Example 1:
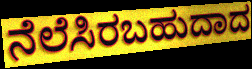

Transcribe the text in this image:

ನೆಲೆಸಿರಬಹುದಾದ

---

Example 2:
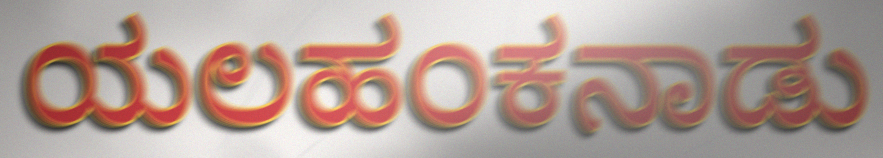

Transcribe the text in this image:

ಯಲಹಂಕನಾಡು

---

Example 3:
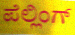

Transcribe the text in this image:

ಪೆಲ್ಲಿಂಗ್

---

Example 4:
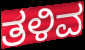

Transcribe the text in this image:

ತಳಿವ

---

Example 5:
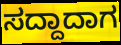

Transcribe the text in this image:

ಸದ್ದಾದಾಗ